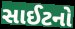
સાઈટનો